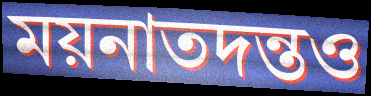
ময়নাতদন্তও